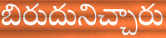
బిరుదునిచ్చారు